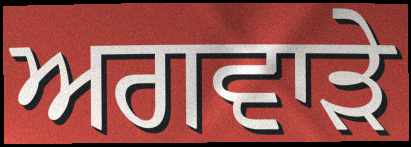
ਅਗਵਾੜੇ